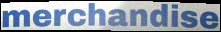
merchandise